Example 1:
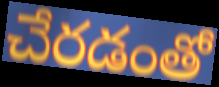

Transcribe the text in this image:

చేరడంతో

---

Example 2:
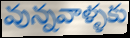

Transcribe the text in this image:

వున్నవాళ్ళకు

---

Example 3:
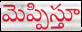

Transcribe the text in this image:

మెప్పిస్తూ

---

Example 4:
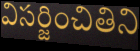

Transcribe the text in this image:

విసర్జించితిని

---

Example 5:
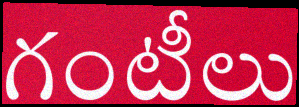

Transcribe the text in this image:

గంటీలు